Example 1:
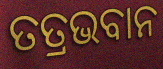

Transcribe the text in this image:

ତତ୍ରଭବାନ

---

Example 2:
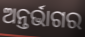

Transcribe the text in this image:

ଅନ୍ତର୍ଭାଗର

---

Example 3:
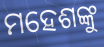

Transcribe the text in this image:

ମହେଶଙ୍କୁ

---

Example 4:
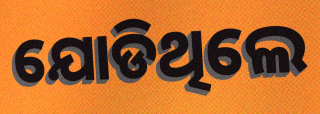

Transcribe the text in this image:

ଯୋଡିଥିଲେ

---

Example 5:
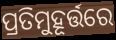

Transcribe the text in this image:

ପ୍ରତିମୁହୂର୍ତ୍ତରେ